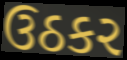
ઉઠકર